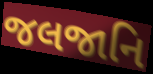
જલજાનિ